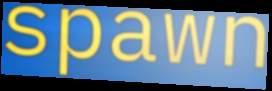
spawn